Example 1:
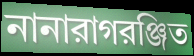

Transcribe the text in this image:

নানারাগরঞ্জিত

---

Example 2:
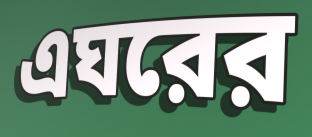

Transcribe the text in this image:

এঘরের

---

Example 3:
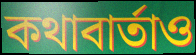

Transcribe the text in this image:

কথাবার্তাও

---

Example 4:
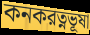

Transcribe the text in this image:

কনকরত্নভূষা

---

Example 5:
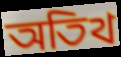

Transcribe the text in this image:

অতিথ